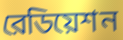
রেডিয়েশন